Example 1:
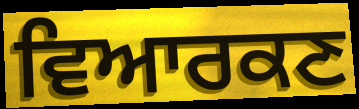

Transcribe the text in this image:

ਵਿਆਰਕਣ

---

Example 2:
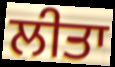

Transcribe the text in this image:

ਲੀਤਾ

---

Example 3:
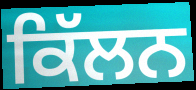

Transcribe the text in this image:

ਕਿੱਲਨ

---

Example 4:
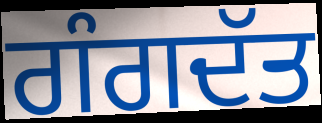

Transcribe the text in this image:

ਗੰਗਦੱਤ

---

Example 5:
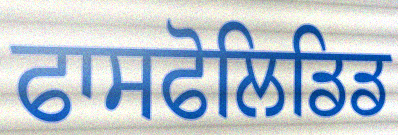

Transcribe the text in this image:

ਫਾਸਫੋਲਿਡਿਡ